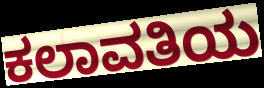
ಕಲಾವತಿಯ